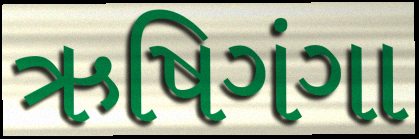
ઋષિગંગા